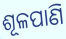
ଶୂଳପାଣି